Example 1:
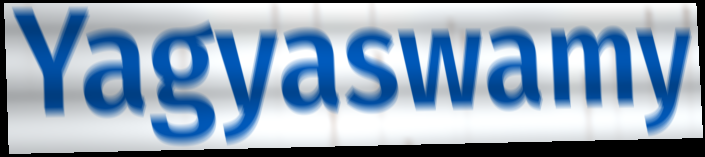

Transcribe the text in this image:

Yagyaswamy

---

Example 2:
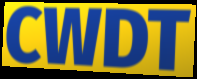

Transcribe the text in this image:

CWDT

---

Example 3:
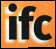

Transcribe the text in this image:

ifc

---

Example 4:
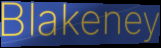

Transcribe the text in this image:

Blakeney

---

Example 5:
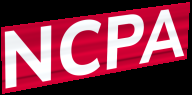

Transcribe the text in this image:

NCPA